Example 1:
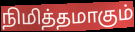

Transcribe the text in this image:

நிமித்தமாகும்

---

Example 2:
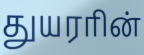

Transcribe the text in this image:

துயரரின்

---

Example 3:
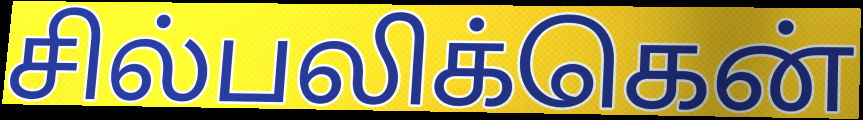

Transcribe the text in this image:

சில்பலிக்கென்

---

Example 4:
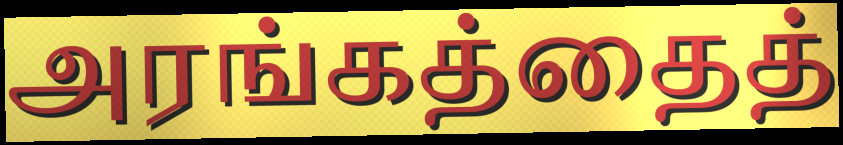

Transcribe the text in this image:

அரங்கத்தைத்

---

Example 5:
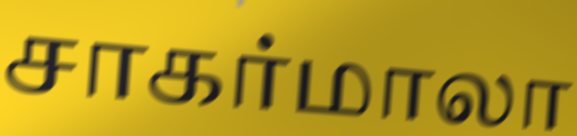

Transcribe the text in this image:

சாகர்மாலா